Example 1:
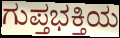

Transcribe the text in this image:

ಗುಪ್ತಭಕ್ತಿಯ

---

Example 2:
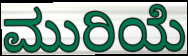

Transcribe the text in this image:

ಮುರಿಯೆ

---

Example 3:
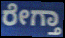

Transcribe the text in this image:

ರೇಗ್ತಾ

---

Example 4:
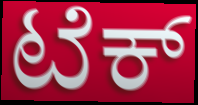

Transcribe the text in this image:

ಟೆಕ್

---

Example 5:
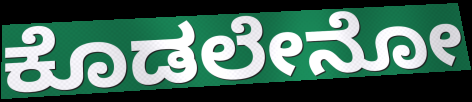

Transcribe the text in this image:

ಕೊಡಲೇನೋ